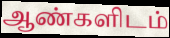
ஆண்களிடம்